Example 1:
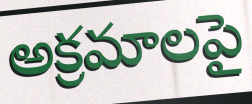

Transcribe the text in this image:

అక్రమాలపై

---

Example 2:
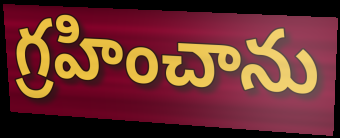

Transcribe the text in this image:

గ్రహించాను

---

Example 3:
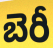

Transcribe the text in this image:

బెరీ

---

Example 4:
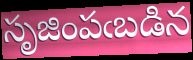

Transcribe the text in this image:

సృజింపఁబడిన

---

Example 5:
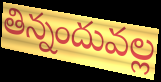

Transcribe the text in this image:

తిన్నందువల్ల